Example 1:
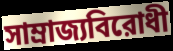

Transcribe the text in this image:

সাম্রাজ্যবিরোধী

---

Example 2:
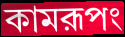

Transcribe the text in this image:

কামরূপং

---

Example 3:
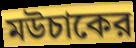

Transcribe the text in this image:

মউচাকের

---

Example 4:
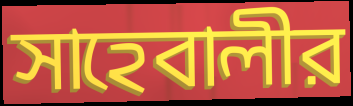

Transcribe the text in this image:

সাহেবালীর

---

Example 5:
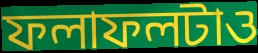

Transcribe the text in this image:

ফলাফলটাও